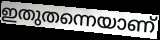
ഇതുതന്നെയാണ്